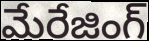
మేరేజింగ్